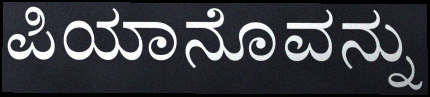
ಪಿಯಾನೊವನ್ನು